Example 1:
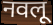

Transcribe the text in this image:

नवलू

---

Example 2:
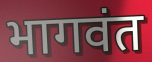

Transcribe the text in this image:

भागवंत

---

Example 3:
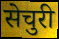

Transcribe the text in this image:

सेचुरी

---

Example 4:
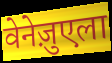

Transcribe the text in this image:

वेनेज़ुएला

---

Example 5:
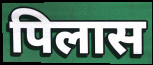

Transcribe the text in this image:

पिलास